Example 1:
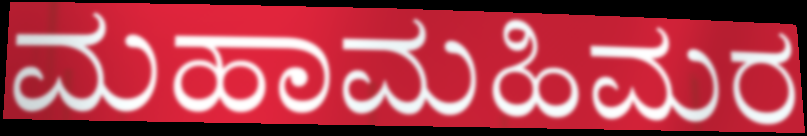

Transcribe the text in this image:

ಮಹಾಮಹಿಮರ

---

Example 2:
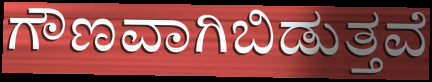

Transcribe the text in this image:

ಗೌಣವಾಗಿಬಿಡುತ್ತವೆ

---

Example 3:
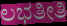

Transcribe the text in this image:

ಲಭತೀತಿ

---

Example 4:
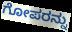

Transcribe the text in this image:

ಗೋಪರನ್ನು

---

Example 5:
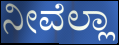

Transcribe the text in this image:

ನೀವೆಲ್ಲಾ